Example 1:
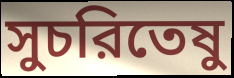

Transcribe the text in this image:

সুচরিতেষু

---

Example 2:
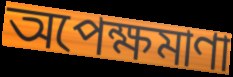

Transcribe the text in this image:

অপেক্ষমাণা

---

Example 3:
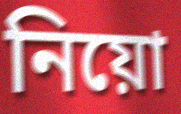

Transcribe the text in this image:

নিয়ো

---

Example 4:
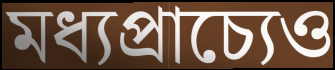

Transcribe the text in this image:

মধ্যপ্রাচ্যেও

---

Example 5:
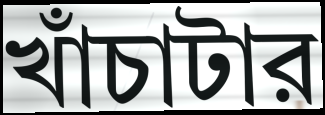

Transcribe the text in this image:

খাঁচাটার